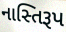
નાસ્તિરૂપ